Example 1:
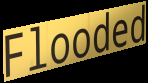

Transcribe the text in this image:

Flooded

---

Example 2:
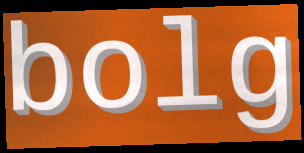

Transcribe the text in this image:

bolg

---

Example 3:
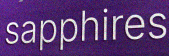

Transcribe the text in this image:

sapphires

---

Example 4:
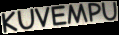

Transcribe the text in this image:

KUVEMPU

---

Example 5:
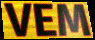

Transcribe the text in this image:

VEM